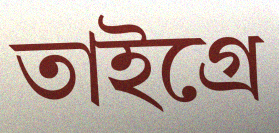
তাইগ্রে